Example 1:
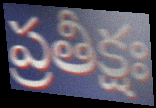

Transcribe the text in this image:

ప్రతీక్షః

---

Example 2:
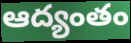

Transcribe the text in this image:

ఆద్యంతం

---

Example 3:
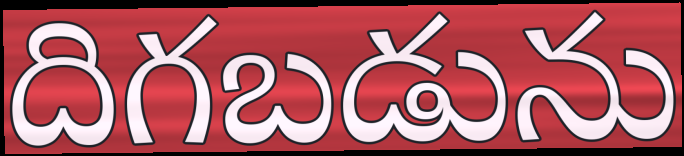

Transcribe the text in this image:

దిగబడును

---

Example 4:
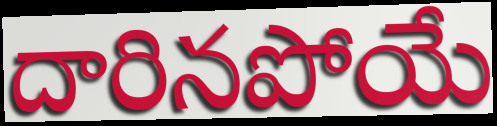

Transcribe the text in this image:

దారినపోయే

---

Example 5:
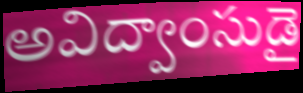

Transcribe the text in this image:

అవిద్వాంసుడై